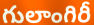
గులాంగిరీ